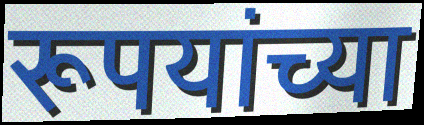
रूपयांच्या